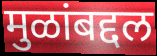
मुळांबद्दल